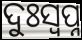
ଦୁଃସ୍ଵପ୍ନ